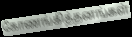
கோணங்கித்தனங்கள்